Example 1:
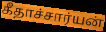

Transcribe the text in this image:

கீதாச்சார்யன்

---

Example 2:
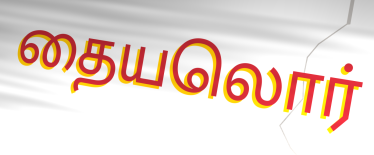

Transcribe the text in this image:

தையலொர்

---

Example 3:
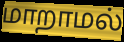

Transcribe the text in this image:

மாறாமல்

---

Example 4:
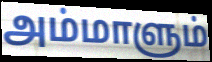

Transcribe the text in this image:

அம்மாளும்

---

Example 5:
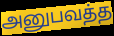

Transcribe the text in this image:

அனுபவத்த